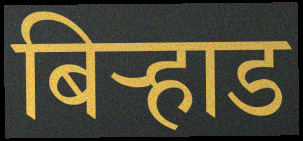
बिर्‍हाड